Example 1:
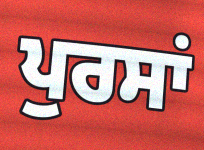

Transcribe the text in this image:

ਪੁਰਸਾਂ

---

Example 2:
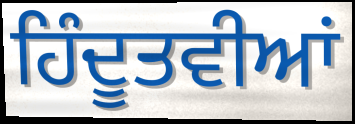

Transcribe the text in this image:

ਹਿੰਦੂਤਵੀਆਂ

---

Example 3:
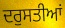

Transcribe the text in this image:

ਦਰੁਸਤੀਆਂ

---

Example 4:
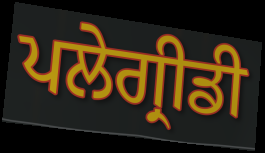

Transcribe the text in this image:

ਪਲੇਗ੍ਰੀਡੀ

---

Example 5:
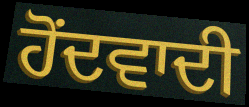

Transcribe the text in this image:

ਹੋਂਦਵਾਦੀ